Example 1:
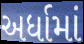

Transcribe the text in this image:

અર્ધામાં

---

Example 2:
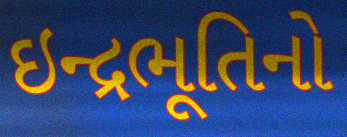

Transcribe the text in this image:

ઇન્દ્રભૂતિનો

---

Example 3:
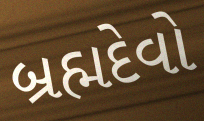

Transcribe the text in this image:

બ્રહ્મદેવો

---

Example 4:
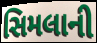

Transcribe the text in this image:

સિમલાની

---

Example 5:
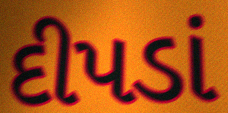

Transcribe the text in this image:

દીપડાં